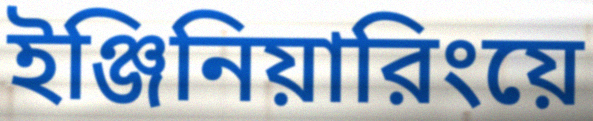
ইঞ্জিনিয়ারিংয়ে